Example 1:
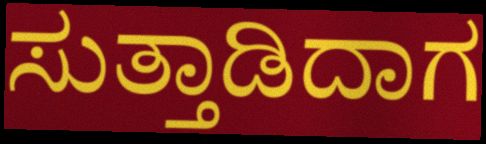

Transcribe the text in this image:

ಸುತ್ತಾಡಿದಾಗ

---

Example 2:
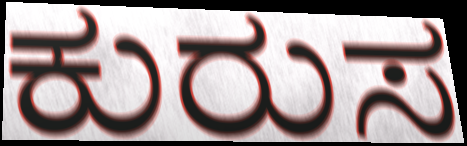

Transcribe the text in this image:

ಕುರುಸ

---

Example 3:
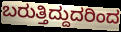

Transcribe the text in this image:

ಬರುತ್ತಿದ್ದುದರಿಂದ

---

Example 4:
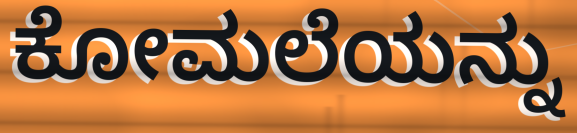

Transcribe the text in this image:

ಕೋಮಲೆಯನ್ನು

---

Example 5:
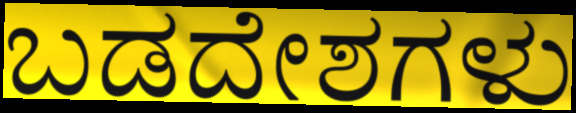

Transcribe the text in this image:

ಬಡದೇಶಗಳು